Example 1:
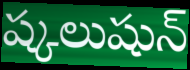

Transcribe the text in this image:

ష్కలుషున్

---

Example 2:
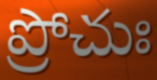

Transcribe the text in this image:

ప్రోచుః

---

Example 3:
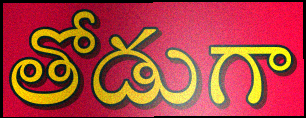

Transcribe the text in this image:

తోడుగా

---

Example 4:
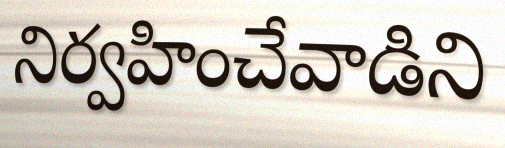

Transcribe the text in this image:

నిర్వహించేవాడిని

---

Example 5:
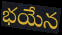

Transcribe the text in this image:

భయేన